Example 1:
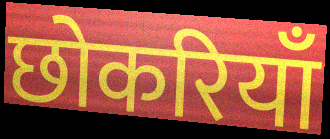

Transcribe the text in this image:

छोकरियाँ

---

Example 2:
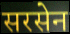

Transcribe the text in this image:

सरसेन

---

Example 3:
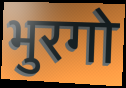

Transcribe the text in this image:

भुरगो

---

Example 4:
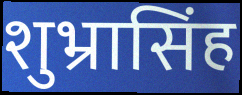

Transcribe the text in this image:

शुभ्रासिंह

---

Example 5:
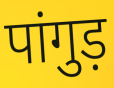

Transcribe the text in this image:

पांगुड़